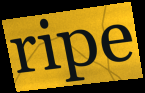
ripe